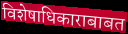
विशेषाधिकाराबाबत